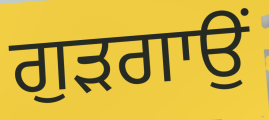
ਗੁੜਗਾਉਂ